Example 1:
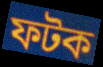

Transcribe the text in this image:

ফটক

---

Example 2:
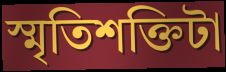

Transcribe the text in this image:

স্মৃতিশক্তিটা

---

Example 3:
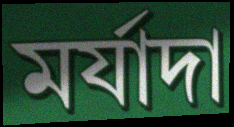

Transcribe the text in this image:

মর্যাদা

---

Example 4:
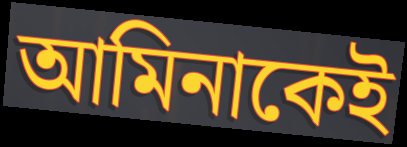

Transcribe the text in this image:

আমিনাকেই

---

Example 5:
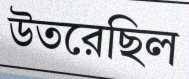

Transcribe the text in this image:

উতরেছিল